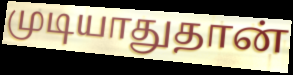
முடியாதுதான்